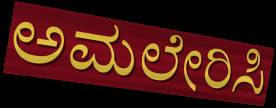
ಅಮಲೇರಿಸಿ